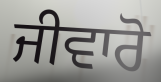
ਜੀਵਾਰੋ